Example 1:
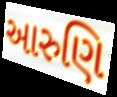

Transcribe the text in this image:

આરુણિ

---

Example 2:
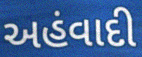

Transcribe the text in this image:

અહંવાદી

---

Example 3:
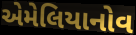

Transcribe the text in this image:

એમેલિયાનોવ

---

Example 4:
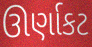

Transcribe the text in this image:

ઊર્ણાકટ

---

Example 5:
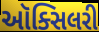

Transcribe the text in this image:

ઑક્સિલરી